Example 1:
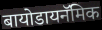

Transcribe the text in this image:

बायोडायनॅमिक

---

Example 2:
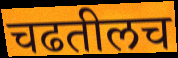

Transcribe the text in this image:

चढतीलच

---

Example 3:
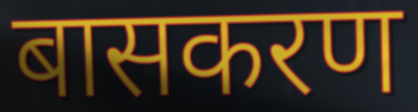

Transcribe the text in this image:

बासकरण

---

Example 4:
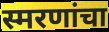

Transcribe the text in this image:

स्मरणांचा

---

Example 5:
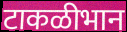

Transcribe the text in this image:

टाकळीभान